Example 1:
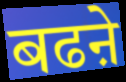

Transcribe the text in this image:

बढऩे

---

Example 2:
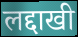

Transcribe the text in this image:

लद्दाखी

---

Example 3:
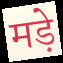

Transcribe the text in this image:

मड़े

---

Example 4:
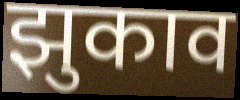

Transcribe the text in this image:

झुकाव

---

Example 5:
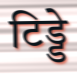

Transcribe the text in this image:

टिड्डे